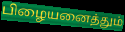
பிழையனைத்தும்